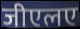
जीएलए